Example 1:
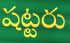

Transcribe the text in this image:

షట్టరు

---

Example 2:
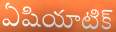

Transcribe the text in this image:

ఏషియాటిక్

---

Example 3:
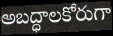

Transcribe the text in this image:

అబద్ధాలకోరుగా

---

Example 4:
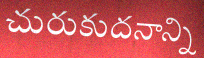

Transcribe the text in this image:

చురుకుదనాన్ని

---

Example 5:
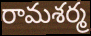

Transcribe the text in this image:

రామశర్మ